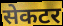
सेकटर